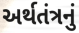
અર્થતંત્રનું